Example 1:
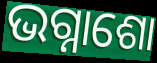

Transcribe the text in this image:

ଭଗ୍ନାଶୋ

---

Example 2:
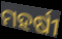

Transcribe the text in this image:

ମହର୍ଷୀ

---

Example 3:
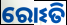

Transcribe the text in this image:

ରୋଽତି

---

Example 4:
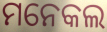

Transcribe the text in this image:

ମନେକଲ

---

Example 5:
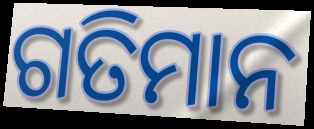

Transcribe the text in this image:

ଗତିମାନ